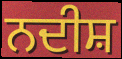
ਨਦੀਸ਼